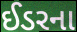
ઈડરના